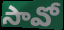
సావో